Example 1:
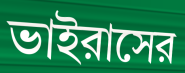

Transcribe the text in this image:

ভাইরাসের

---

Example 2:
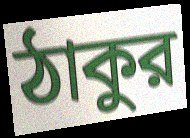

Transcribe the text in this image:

ঠাকুর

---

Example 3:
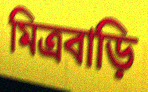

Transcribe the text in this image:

মিত্রবাড়ি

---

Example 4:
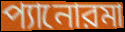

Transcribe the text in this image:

প্যানোরমা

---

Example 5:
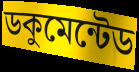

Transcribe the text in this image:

ডকুমেন্টেড